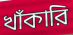
খাঁকারি